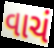
વાચં